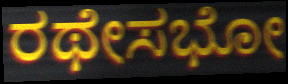
ರಥೇಸಭೋ